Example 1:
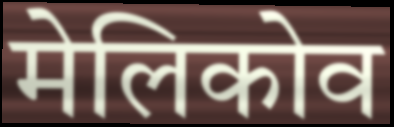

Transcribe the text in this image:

मेलिकोव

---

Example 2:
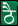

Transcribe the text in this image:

ठै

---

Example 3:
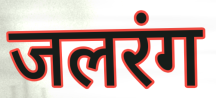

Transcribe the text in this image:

जलरंग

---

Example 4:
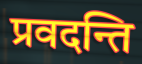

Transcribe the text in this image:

प्रवदन्ति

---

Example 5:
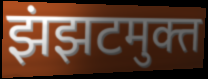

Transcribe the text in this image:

झंझटमुक्त